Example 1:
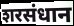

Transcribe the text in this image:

शरसंधान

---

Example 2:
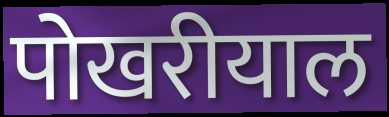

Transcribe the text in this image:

पोखरीयाल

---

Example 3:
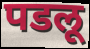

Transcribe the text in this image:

पडलू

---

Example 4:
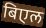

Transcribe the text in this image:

बिएल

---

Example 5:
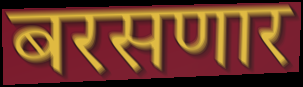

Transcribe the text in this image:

बरसणार